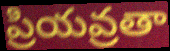
ప్రియవ్రతా